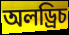
অলড্রিচ